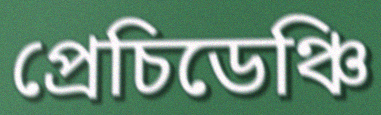
প্ৰেচিডেঞ্চি